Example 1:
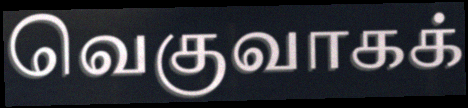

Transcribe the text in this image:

வெகுவாகக்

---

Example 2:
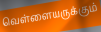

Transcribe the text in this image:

வெள்ளையருக்கும்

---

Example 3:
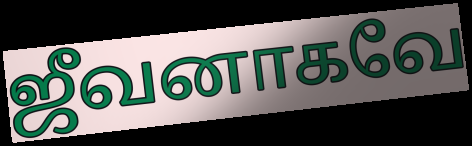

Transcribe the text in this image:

ஜீவனாகவே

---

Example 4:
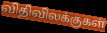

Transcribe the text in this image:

விதிவிலக்குகள்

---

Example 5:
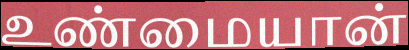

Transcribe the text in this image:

உண்மையான்